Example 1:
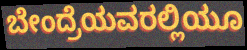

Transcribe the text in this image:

ಬೇಂದ್ರೆಯವರಲ್ಲಿಯೂ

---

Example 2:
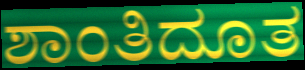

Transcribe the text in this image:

ಶಾಂತಿದೂತ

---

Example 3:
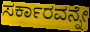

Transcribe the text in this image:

ಸರ್ಕಾರವನ್ನೇ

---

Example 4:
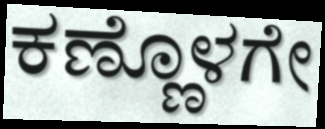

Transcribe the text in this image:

ಕಣ್ಣೊಳಗೇ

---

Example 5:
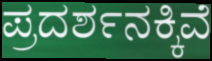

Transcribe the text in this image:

ಪ್ರದರ್ಶನಕ್ಕಿವೆ